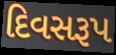
દિવસરૂપ